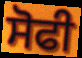
ਸੋਫੀ